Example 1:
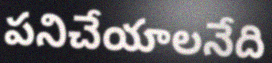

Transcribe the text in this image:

పనిచేయాలనేది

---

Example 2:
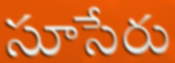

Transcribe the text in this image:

సూసేరు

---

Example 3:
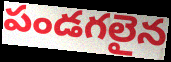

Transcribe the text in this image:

పండగలైన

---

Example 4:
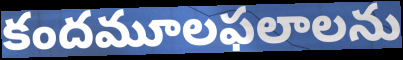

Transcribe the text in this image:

కందమూలఫలాలను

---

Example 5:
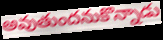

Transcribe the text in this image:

అవుతుందనుకొన్నాడు